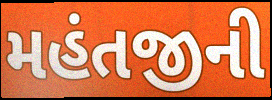
મહંતજીની